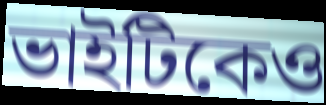
ভাইটিকেও